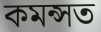
কমন্সত